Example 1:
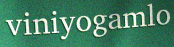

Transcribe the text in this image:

viniyogamlo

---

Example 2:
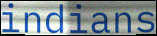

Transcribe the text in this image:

indians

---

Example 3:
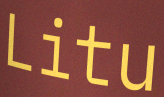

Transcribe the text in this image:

Litu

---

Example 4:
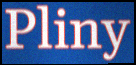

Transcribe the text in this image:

Pliny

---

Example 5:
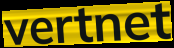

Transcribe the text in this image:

vertnet